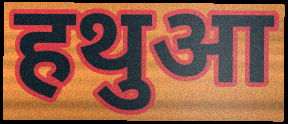
हथुआ